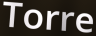
Torre